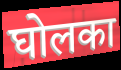
घोलका